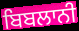
ਬਿਬਲਾਨੀ